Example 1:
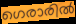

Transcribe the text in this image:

ഗെരാരിൽ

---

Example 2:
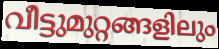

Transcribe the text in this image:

വീട്ടുമുറ്റങ്ങളിലും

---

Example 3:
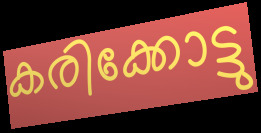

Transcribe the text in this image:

കരിക്കോട്ടു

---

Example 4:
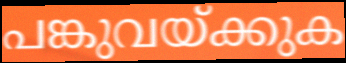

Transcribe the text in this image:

പങ്കുവയ്ക്കുക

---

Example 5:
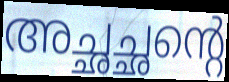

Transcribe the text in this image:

അച്ഛച്ഛന്റെ